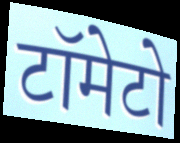
टॉमेटो